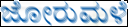
ಜೋರುಮಳೆ